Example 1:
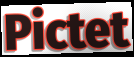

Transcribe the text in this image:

Pictet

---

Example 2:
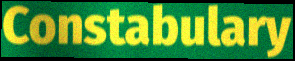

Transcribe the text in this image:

Constabulary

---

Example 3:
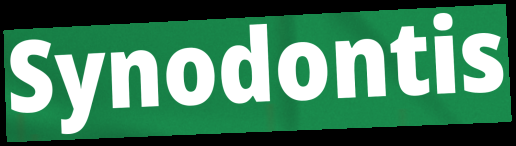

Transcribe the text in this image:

Synodontis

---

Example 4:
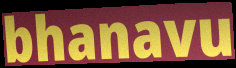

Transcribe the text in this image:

bhanavu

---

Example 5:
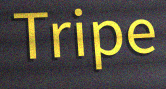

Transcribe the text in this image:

Tripe